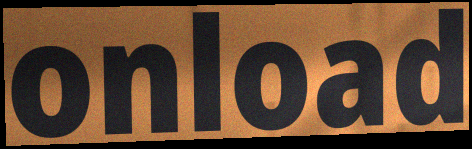
onload